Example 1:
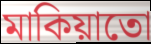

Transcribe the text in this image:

মাকিয়াতো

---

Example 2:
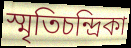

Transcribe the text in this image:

স্মৃতিচন্দ্রিকা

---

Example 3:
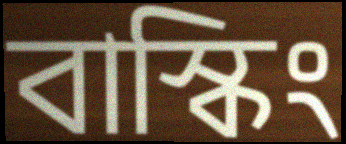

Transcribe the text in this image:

বাস্কিং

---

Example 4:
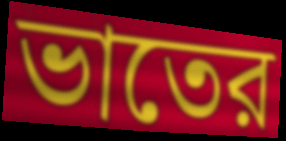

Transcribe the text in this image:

ভাতের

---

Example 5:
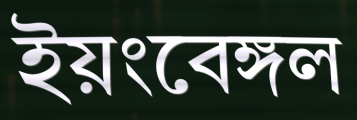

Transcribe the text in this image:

ইয়ংবেঙ্গল